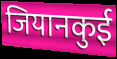
जियानकुई